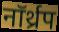
नॉर्थ्रप